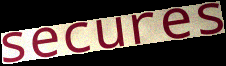
secures